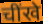
चींखे